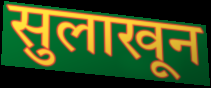
सुलाखून